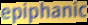
epiphanic